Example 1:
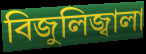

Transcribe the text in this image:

বিজুলিজ্বালা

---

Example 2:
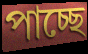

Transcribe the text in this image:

পাচ্ছে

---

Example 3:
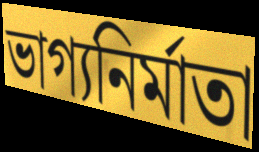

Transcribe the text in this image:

ভাগ্যনির্মাতা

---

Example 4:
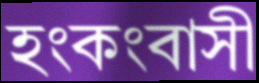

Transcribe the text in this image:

হংকংবাসী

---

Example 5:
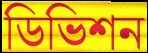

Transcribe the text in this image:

ডিভিশন